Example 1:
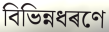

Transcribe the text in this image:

বিভিন্নধৰণে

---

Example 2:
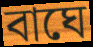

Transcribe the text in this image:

বাঘে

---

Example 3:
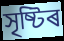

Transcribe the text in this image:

সৃষ্টিৰ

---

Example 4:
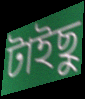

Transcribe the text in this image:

টাইছু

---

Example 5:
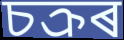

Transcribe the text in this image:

চক্ৰৰ